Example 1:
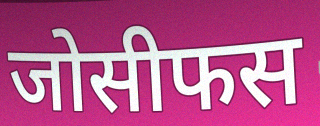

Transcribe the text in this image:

जोसीफस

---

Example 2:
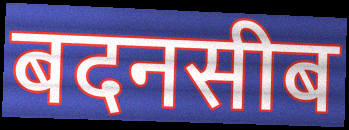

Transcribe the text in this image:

बदनसीब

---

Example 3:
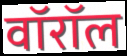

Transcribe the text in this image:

वॉरॉल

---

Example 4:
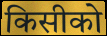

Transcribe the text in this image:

किसीको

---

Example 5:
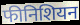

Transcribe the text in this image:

फीनिशियन